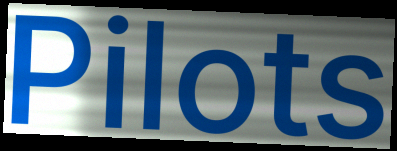
Pilots